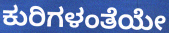
ಕುರಿಗಳಂತೆಯೇ